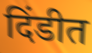
दिंडीत